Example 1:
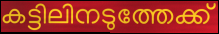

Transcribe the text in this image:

കട്ടിലിനടുത്തേക്ക്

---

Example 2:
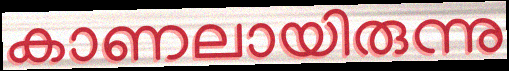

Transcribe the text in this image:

കാണലായിരുന്നു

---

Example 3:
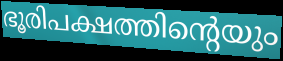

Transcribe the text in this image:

ഭൂരിപക്ഷത്തിന്റെയും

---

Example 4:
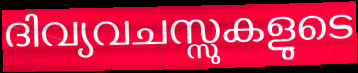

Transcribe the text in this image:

ദിവ്യവചസ്സുകളുടെ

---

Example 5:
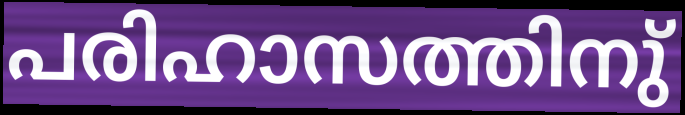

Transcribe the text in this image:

പരിഹാസത്തിനു്